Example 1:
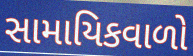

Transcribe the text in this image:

સામાયિકવાળો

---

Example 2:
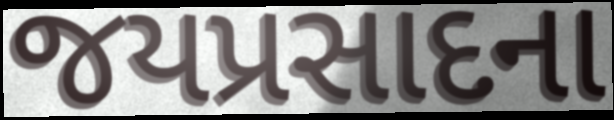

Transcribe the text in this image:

જયપ્રસાદના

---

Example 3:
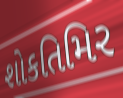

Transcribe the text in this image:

શોકતિમિર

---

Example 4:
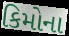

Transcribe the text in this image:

કિમોના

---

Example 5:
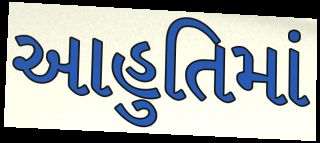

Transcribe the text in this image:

આહુતિમાં